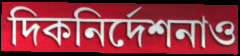
দিকনির্দেশনাও